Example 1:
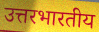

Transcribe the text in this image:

उत्तरभारतीय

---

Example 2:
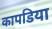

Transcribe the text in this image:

कापडिया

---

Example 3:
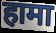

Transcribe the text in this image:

हामा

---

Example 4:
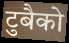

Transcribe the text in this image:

टुबैको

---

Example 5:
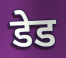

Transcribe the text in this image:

डेड